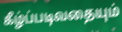
கீழ்ப்படிவதையும்